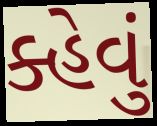
ક્હેવું